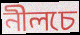
নীলচে